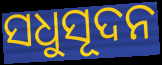
ସଧୁସୂଦନ